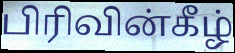
பிரிவின்கீழ்